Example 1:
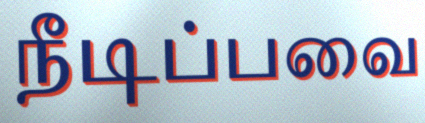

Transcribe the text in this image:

நீடிப்பவை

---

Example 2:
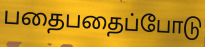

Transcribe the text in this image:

பதைபதைப்போடு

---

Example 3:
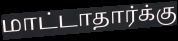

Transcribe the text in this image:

மாட்டாதார்க்கு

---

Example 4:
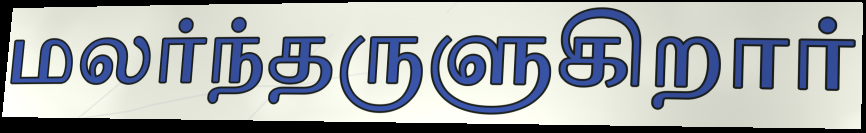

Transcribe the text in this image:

மலர்ந்தருளுகிறார்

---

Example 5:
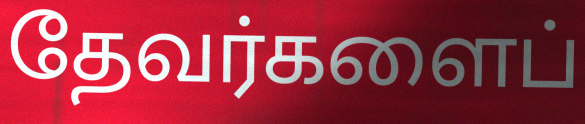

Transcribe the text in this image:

தேவர்களைப்